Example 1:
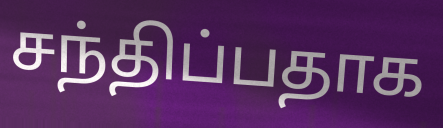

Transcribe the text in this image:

சந்திப்பதாக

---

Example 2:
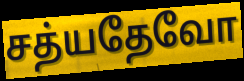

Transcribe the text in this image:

சத்யதேவோ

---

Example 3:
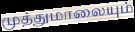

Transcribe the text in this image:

முத்துமாலையும்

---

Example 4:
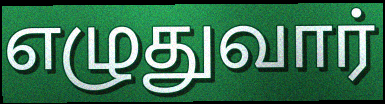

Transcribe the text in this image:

எழுதுவார்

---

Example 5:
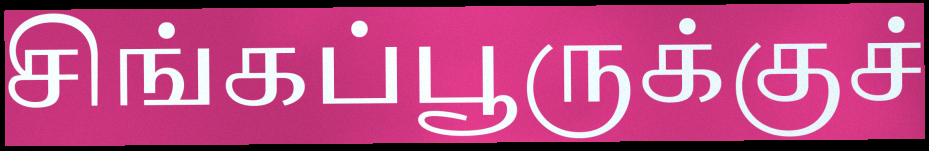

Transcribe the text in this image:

சிங்கப்பூருக்குச்